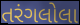
તરંગલોલા